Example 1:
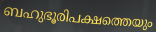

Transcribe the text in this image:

ബഹുഭൂരിപക്ഷത്തെയും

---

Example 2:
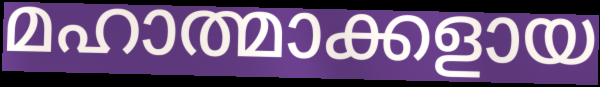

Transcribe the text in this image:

മഹാത്മാക്കളായ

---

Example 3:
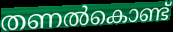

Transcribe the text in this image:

തണൽകൊണ്ട്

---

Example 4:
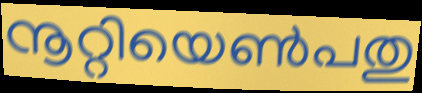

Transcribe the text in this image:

നൂറ്റിയെൺപതു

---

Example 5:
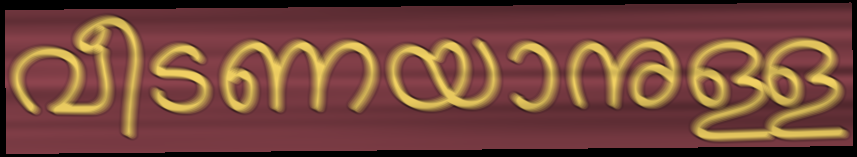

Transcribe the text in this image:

വീടണയാനുള്ള